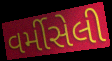
વર્મીસેલી